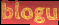
blogu